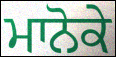
ਮਾਨੋਕੇ